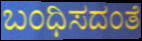
ಬಂಧಿಸದಂತೆ